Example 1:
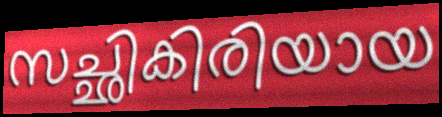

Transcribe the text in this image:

സച്ഛികിരിയായ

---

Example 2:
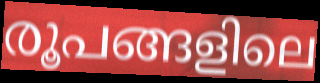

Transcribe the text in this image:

രൂപങ്ങളിലെ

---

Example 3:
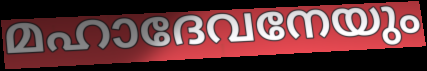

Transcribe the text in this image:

മഹാദേവനേയും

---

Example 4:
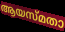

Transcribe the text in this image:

ആയസ്മതാ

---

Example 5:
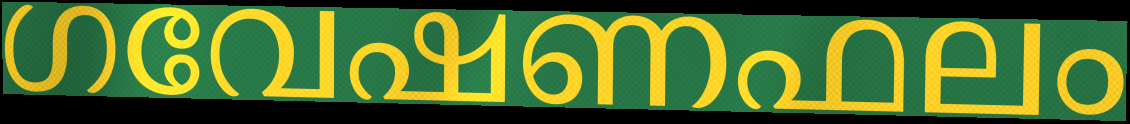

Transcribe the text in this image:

ഗവേഷണഫലം